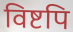
विष्टपि